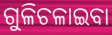
ଗୁଳିଚଳାଇବା